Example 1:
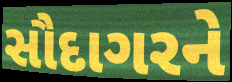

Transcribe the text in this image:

સૌદાગરને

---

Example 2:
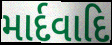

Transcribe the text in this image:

માર્દવાદિ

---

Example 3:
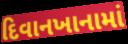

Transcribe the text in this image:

દિવાનખાનામાં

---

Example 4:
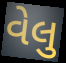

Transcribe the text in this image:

વેલુ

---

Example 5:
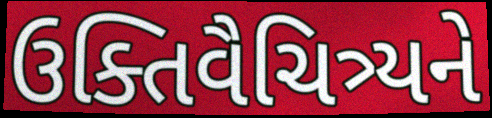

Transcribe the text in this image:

ઉક્તિવૈચિત્ર્યને